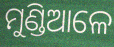
ମୁଣ୍ଡିଆଳେ